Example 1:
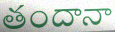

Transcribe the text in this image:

తందానా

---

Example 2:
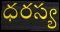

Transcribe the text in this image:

ధరస్య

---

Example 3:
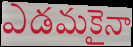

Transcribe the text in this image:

ఎడమకైనా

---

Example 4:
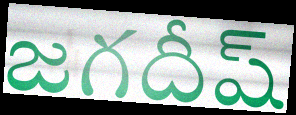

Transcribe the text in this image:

జగదీష్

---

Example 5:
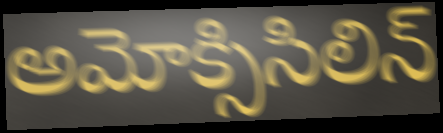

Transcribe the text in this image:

అమోక్సిసిలిన్